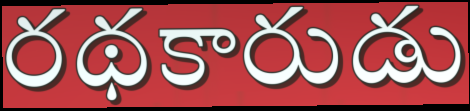
రథకారుడు